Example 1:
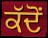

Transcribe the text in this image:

ਕੱਦੋਂ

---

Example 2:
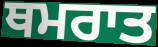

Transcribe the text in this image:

ਥਮਰਾਤ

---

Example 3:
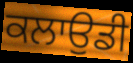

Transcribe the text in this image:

ਕਲਾਉਡੀ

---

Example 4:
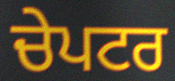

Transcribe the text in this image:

ਚੇਪਟਰ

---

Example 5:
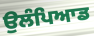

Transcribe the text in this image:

ਉਲੰਪਿਆਡ